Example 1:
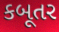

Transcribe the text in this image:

કબૂતર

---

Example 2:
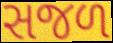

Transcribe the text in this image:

સજળ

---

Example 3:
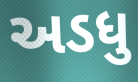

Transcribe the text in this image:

અડધુ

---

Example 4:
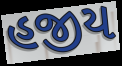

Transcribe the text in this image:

હજીય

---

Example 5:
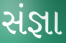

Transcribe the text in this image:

સંજ્ઞા